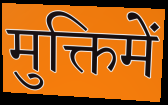
मुक्तिमें